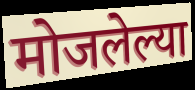
मोजलेल्या